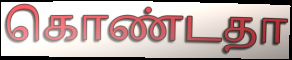
கொண்டதா